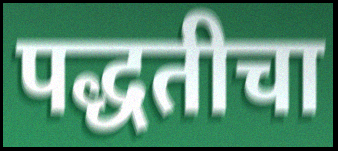
पद्धतीचा